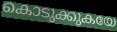
കൊടുക്കുകയേ